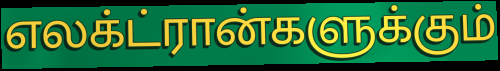
எலக்ட்ரான்களுக்கும்